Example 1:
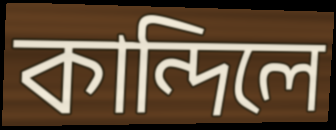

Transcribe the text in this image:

কান্দিলে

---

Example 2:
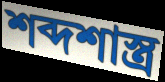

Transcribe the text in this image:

শব্দশাস্ত্র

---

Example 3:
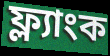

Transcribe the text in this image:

ফ্ল্যাংক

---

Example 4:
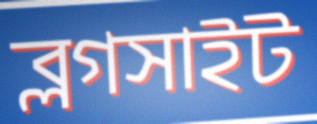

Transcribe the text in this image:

ব্লগসাইট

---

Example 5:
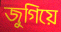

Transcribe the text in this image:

জুগিয়ে